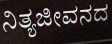
ನಿತ್ಯಜೀವನದ